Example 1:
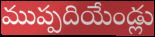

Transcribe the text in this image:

ముప్పదియేండ్లు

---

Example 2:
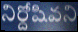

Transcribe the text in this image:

నిర్దోషివని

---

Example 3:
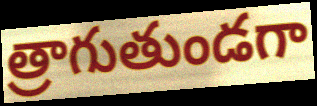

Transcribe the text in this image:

త్రాగుతుండగా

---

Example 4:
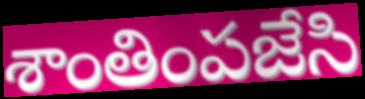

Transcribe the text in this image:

శాంతింపజేసి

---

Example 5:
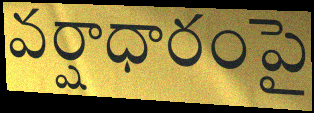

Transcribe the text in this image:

వర్షాధారంపై